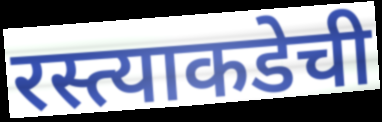
रस्त्याकडेची